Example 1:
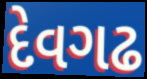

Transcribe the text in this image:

દેવગઢ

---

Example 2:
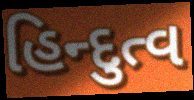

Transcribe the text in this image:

હિન્દુત્વ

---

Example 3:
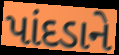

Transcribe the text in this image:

પાંદડાને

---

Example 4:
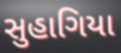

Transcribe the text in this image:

સુહાગિયા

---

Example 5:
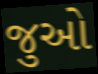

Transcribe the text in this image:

જુઓ